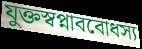
যুক্তস্বপ্নাববোধস্য